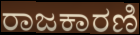
ರಾಜಕಾರಣಿ